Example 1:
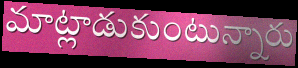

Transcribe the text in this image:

మాట్లాడుకుంటున్నారు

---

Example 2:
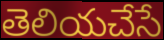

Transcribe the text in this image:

తెలియచేసే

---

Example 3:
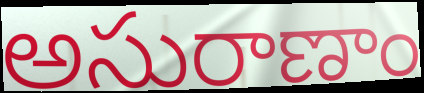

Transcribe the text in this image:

అసురాణాం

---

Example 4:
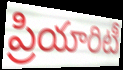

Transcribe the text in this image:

ప్రియారిటీ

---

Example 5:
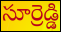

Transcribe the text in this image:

సూర్రెడ్డి